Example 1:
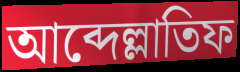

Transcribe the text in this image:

আব্দেল্লাতিফ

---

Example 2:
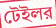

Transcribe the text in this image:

টেইলর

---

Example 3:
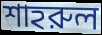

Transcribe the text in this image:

শাহরুল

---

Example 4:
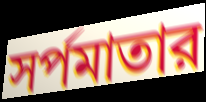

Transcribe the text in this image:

সর্পমাতার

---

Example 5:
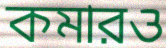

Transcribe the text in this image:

কমারও